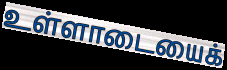
உள்ளாடையைக்